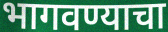
भागवण्याचा